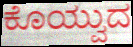
ಕೊಯ್ವುದ